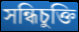
সন্ধিচুক্তি